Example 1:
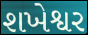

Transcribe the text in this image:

શખેશ્વર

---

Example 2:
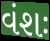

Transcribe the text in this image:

વંશઃ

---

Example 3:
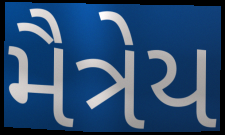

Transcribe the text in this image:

મૈત્રેય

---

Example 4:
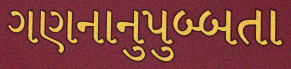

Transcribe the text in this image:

ગણનાનુપુબ્બતા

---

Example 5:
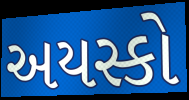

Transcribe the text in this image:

અયસ્કો